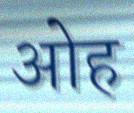
ओह